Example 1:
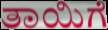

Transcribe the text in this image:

ತಾಯಿಗೆ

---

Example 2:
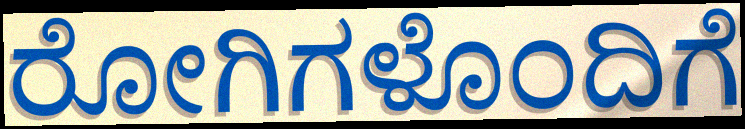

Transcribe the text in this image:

ರೋಗಿಗಳೊಂದಿಗೆ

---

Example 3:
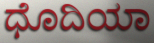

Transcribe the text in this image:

ಧೊದಿಯಾ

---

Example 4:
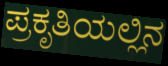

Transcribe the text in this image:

ಪ್ರಕೃತಿಯಲ್ಲಿನ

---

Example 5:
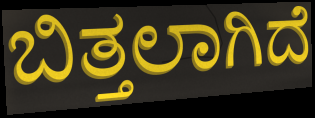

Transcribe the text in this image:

ಬಿತ್ತಲಾಗಿದೆ